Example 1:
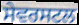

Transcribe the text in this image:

ਸੇਵਰਸਟਲ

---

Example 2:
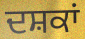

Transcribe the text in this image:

ਦਸ਼ਕਾਂ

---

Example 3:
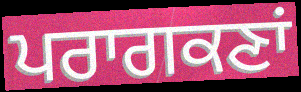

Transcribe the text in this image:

ਪਰਾਗਕਣਾਂ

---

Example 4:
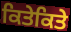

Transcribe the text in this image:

ਕਿਤੇਕਿਤੇ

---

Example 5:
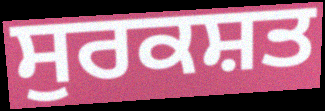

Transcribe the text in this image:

ਸੁਰਕਸ਼ਤ